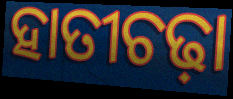
ହାତୀଚଢ଼ା